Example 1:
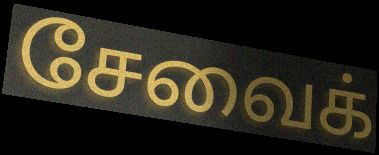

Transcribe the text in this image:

சேவைக்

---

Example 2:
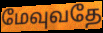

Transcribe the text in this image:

மேவுவதே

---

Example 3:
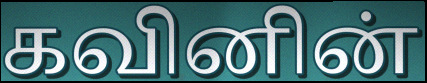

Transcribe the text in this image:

கவினின்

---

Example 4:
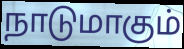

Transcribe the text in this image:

நாடுமாகும்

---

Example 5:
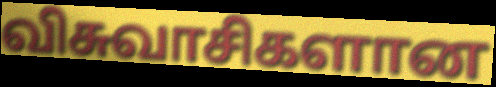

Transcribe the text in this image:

விசுவாசிகளான